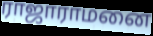
ராஜாராமனை